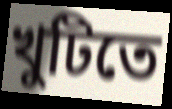
খুটিতে